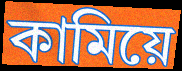
কামিয়ে